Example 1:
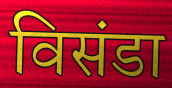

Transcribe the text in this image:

विसंडा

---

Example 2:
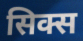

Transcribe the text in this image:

सिक्स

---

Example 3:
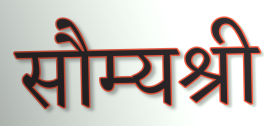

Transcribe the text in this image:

सौम्यश्री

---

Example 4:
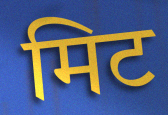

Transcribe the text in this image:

मिट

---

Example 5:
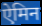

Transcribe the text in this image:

ऐमिन